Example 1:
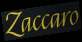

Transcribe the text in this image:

Zaccaro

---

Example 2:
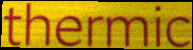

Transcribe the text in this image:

thermic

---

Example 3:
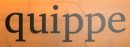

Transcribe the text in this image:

quippe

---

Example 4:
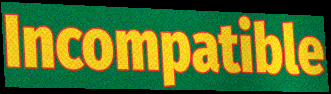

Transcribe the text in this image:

Incompatible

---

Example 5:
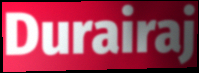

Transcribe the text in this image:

Durairaj